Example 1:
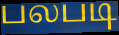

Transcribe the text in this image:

பலபடி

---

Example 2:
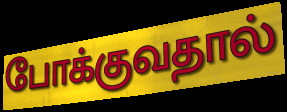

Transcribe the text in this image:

போக்குவதால்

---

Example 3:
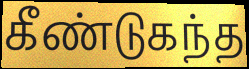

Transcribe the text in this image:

கீண்டுகந்த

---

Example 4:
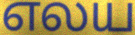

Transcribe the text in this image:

எலய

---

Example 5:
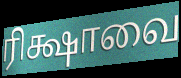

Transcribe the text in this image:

ரிக்ஷாவை